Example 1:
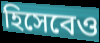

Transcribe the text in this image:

হিসেবেও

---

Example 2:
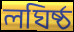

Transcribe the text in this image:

লঘিষ্ঠ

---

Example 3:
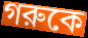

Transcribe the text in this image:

গরুকে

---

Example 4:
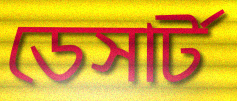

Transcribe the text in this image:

ডেসার্ট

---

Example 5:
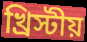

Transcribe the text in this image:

খ্রিস্টীয়